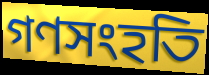
গণসংহতি